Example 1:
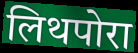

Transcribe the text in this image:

लिथपोरा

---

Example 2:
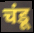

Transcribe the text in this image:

चंडू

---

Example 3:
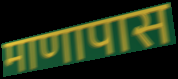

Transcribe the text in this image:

माणापास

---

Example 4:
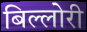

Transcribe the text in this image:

बिल्लोरी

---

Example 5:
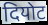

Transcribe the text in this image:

दियोट